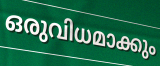
ഒരുവിധമാക്കും